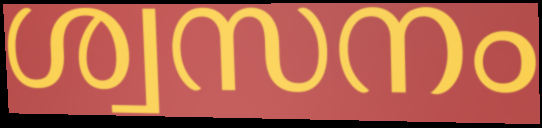
ശ്വസനം